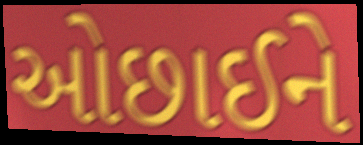
ઓછાઈને